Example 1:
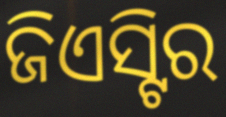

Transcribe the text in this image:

ଜିଏସ୍ଟିର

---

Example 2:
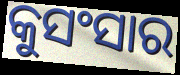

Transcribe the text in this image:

କୁସଂସାର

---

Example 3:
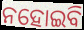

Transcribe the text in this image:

ନହୋଇବି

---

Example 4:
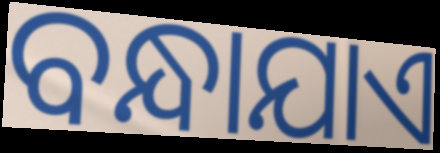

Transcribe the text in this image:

ବନ୍ଧାଯାଏ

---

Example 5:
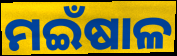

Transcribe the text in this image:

ମଇଁଷାଳ